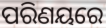
ପରିଣୟରେ